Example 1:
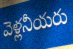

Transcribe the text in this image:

వెళ్లనీయరు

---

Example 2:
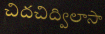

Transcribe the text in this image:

చిదచిద్విలాసా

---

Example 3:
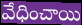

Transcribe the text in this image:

వేధించాయి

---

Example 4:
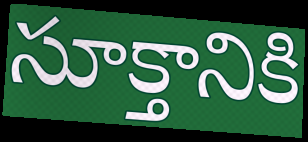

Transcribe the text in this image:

సూక్తానికి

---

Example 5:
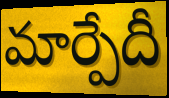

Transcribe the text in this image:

మార్పేదీ